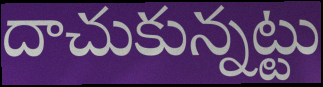
దాచుకున్నట్టు